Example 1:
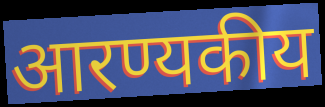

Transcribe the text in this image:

आरण्यकीय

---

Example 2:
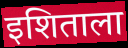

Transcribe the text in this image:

इशिताला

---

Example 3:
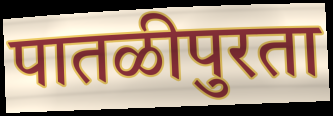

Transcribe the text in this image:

पातळीपुरता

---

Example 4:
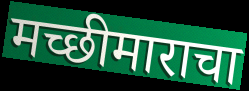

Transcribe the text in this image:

मच्छीमाराचा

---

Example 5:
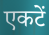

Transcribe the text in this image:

एकटें